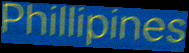
Phillipines